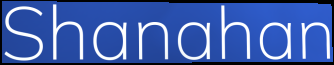
Shanahan